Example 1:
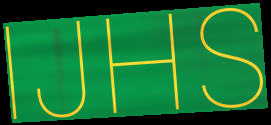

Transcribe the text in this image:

IJHS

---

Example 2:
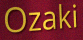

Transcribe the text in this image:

Ozaki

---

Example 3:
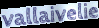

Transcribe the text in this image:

vallaivelie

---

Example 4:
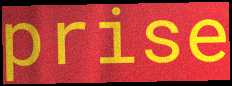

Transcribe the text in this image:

prise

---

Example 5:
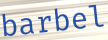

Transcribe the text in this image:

barbel